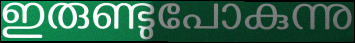
ഇരുണ്ടുപോകുന്നു